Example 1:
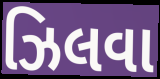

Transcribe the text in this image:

ઝિલવા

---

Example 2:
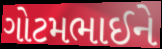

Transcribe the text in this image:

ગોટમભાઈને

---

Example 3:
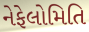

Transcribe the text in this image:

નેફેલોમિતિ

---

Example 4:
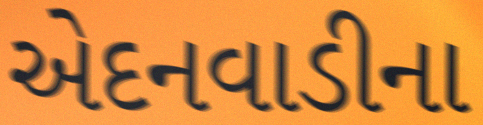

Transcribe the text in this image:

એદનવાડીના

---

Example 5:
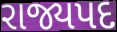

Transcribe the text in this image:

રાજ્યપદ